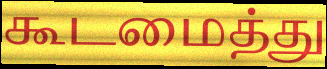
கூடமைத்து